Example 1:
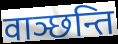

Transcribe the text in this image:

वाञ्छन्ति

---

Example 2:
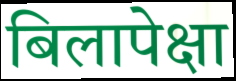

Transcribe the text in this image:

बिलापेक्षा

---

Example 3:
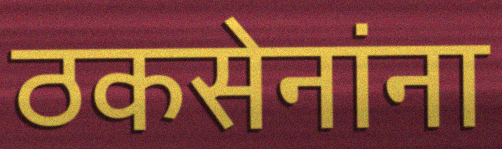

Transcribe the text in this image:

ठकसेनांना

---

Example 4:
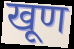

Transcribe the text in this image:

खूण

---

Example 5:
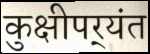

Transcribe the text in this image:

कुक्षीपर्यंत